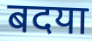
बदया